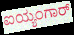
ಐಯ್ಯಂಗಾರ್